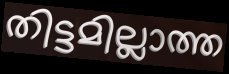
തിട്ടമില്ലാത്ത